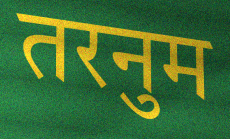
तरनुम